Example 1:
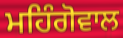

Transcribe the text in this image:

ਮਹਿੰਗੋਵਾਲ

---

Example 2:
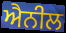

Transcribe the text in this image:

ਐਨੀਲ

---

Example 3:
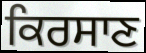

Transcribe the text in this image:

ਕਿਰਸਾਣ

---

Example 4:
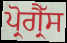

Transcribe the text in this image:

ਪ੍ਰੋਗ੍ਰੈੱਸ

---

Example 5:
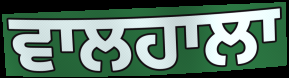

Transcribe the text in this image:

ਵਾਲਹਾਲਾ